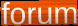
forum